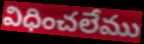
విధించలేము